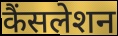
कैंसलेशन